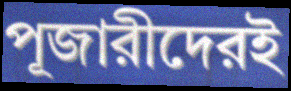
পূজারীদেরই